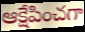
ఆక్షేపించగా